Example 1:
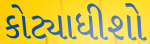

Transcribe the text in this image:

કોટ્યાધીશો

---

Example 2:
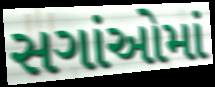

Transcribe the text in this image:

સગાંઓમાં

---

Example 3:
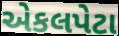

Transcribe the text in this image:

એકલપેટા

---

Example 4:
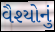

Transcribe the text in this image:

વૈશ્યોનું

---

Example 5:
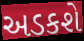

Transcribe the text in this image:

અડકશે